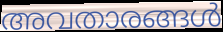
അവതാരങ്ങൾ